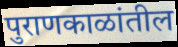
पुराणकाळांतील